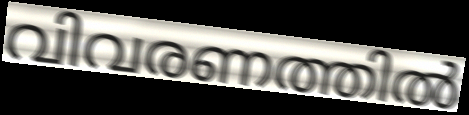
വിവരണത്തിൽ